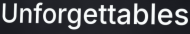
Unforgettables